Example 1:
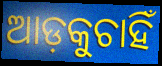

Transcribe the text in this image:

ଆଡ଼କୁଚାହିଁ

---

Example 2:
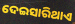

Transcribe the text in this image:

ଦେଇସାରିଥାଏ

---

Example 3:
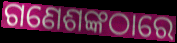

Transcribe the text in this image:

ଗଣେଶଙ୍କଠାରେ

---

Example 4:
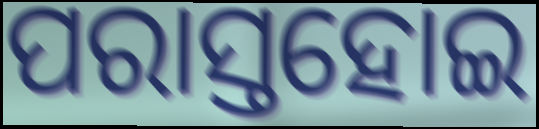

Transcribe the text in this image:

ପରାସ୍ତହୋଇ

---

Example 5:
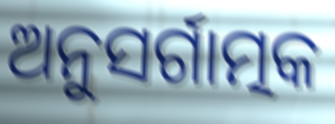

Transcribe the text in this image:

ଅନୁସର୍ଗାତ୍ମକ